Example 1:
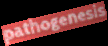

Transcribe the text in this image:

pathogenesis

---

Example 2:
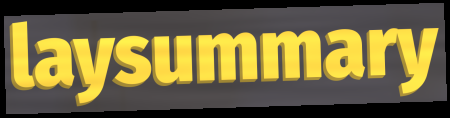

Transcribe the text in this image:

laysummary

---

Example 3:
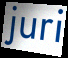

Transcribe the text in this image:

juri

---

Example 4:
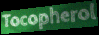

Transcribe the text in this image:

Tocopherol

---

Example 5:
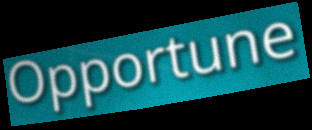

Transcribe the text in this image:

Opportune